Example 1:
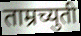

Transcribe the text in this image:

ताम्रच्युती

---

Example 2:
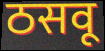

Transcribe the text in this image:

ठसवू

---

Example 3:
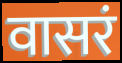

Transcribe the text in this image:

वासरं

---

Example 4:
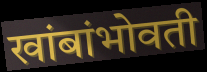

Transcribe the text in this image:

खांबांभोवती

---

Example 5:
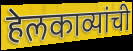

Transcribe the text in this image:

हेलकाव्यांची